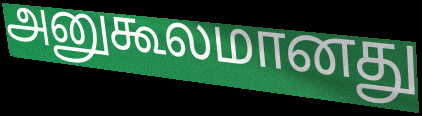
அனுகூலமானது